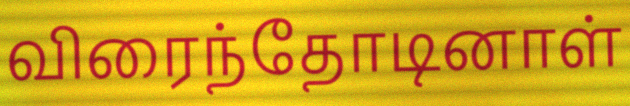
விரைந்தோடினாள்